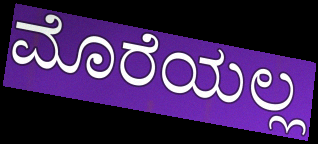
ಮೊರೆಯಲ್ಲ